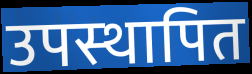
उपस्थापित